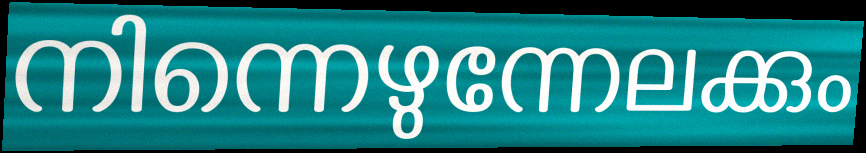
നിന്നെഴുന്നേലക്കും